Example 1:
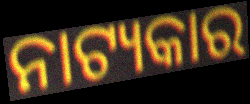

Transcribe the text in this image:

ନାଟ୍ୟକାର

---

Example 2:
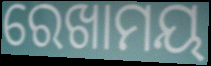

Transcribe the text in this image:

ରେଖାମୟ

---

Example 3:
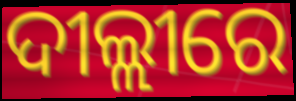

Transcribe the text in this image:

ଦୀଲ୍ଲୀରେ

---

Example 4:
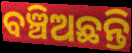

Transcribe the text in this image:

ବଞ୍ଚିଅଛନ୍ତି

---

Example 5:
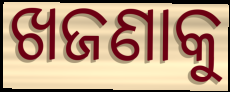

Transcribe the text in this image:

ଖଜଣାକୁ